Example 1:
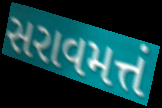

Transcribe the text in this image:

સરાવમત્તં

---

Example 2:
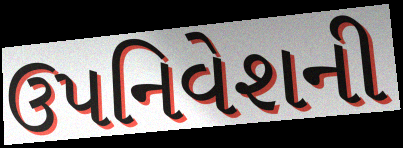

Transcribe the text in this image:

ઉપનિવેશની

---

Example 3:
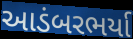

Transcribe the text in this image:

આડંબરભર્યા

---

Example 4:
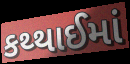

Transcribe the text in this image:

કથ્થાઈમાં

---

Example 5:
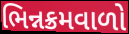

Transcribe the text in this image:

ભિન્નક્રમવાળો